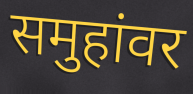
समुहांवर